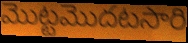
మొట్టమొదటసారి